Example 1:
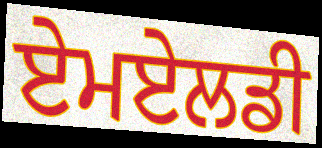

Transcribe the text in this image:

ਏਮਏਲਡੀ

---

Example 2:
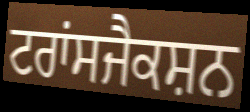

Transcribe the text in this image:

ਟਰਾਂਸਜੈਕਸ਼ਨ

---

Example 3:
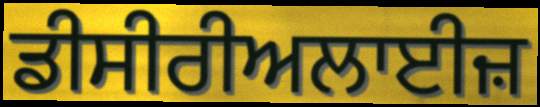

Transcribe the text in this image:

ਡੀਸੀਰੀਅਲਾਈਜ਼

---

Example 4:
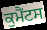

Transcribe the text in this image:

ਕੁਮੈਂਟਸ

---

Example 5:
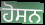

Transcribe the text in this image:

ਹੋਸਨ